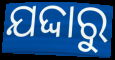
ଯଦ୍ଦାରୁ